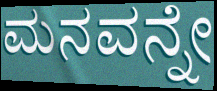
ಮನವನ್ನೇ